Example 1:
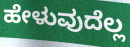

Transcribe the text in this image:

ಹೇಳುವುದೆಲ್ಲ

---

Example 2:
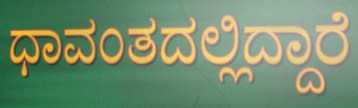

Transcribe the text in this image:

ಧಾವಂತದಲ್ಲಿದ್ದಾರೆ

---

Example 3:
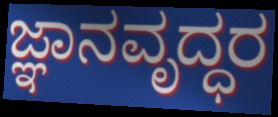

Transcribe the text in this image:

ಜ್ಞಾನವೃದ್ಧರ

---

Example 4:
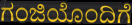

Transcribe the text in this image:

ಗಂಜಿಯೊಂದಿಗೆ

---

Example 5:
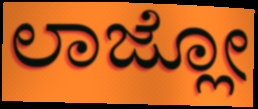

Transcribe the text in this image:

ಲಾಜ್ಲೋ